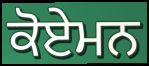
ਕੋਏਮਨ